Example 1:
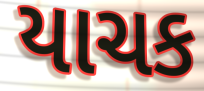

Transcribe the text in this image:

યાચક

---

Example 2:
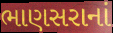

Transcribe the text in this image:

ભાણસરાનાં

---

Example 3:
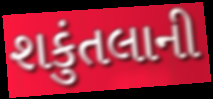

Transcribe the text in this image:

શકુંતલાની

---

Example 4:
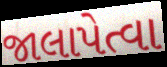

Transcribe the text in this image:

જાલાપેત્વા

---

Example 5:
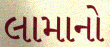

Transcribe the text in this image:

લામાનો